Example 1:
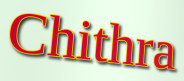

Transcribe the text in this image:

Chithra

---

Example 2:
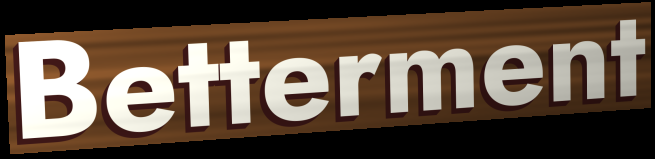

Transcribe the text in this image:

Betterment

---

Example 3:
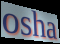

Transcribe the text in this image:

osha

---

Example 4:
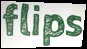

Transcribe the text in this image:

flips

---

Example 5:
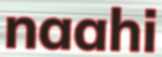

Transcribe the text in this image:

naahi